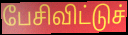
பேசிவிட்டுச்